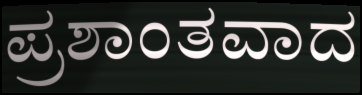
ಪ್ರಶಾಂತವಾದ